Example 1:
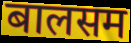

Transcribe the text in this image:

बालसम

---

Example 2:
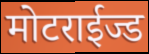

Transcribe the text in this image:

मोटराईज्ड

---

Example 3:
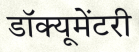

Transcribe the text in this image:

डॉक्यूमेंटरी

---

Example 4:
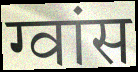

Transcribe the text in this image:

ग्वांस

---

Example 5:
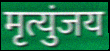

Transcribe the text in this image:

मृत्युंजय